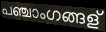
പഞ്ചാംഗങ്ങള്